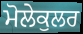
ਮੋਲੇਕੁਲਰ